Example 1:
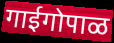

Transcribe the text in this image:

गाईगोपाळ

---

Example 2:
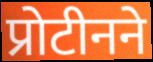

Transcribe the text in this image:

प्रोटीनने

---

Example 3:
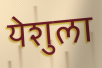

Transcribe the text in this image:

येशुला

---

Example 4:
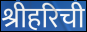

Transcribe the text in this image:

श्रीहरिची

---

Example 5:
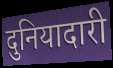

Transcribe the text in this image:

दुनियादारी